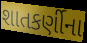
શાતકર્ણીના